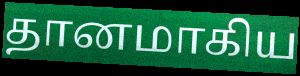
தானமாகிய